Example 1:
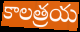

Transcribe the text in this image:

కాలత్రయ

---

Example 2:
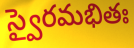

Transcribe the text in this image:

స్వైరమభితః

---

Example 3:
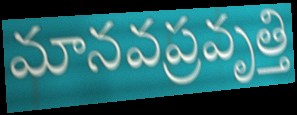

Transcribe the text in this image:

మానవప్రవృత్తి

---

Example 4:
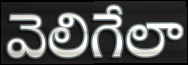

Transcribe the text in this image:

వెలిగేలా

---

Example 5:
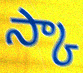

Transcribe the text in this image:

స్కా